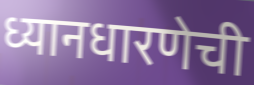
ध्यानधारणेची